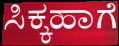
ಸಿಕ್ಕಹಾಗೆ